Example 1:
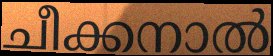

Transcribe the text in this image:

ചീക്കനാൽ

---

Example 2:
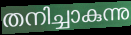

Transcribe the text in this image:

തനിച്ചാകുന്നു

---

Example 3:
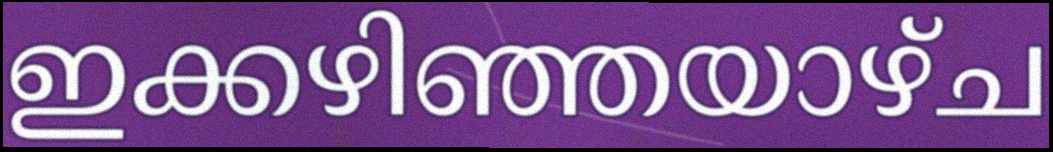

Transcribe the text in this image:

ഇക്കഴിഞ്ഞയാഴ്ച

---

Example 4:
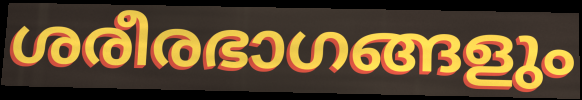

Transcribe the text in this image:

ശരീരഭാഗങ്ങളും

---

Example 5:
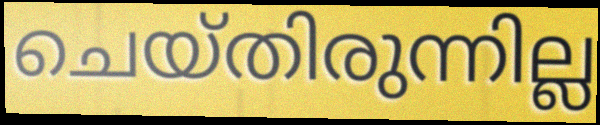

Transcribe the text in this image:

ചെയ്തിരുന്നില്ല